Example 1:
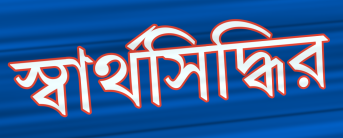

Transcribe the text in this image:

স্বার্থসিদ্ধির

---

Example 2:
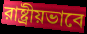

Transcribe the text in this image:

রাষ্ট্রীয়ভাবে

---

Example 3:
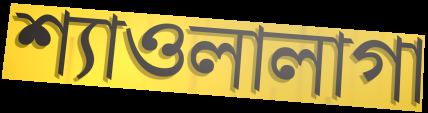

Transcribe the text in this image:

শ্যাওলালাগা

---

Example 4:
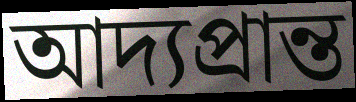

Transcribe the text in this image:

আদ্যপ্রান্ত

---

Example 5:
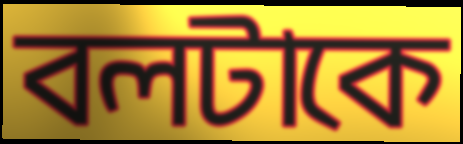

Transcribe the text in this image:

বলটাকে